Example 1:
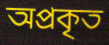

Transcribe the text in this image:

অপ্ৰকৃত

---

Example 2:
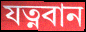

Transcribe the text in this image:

যত্নবান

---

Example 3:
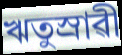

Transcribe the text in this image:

ঋতুস্ৰাৱী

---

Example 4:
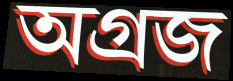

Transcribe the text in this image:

অগ্ৰজ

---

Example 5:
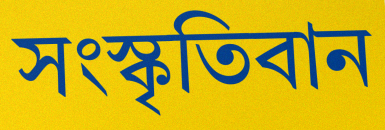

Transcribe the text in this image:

সংস্কৃতিবান